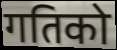
गतिको